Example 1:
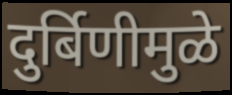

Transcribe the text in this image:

दुर्बिणीमुळे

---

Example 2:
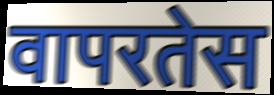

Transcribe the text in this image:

वापरतेस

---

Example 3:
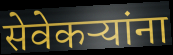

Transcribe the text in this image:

सेवेकऱ्यांना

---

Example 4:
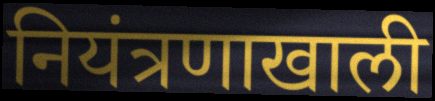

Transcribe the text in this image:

नियंत्रणाखाली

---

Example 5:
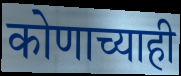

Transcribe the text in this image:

कोणाच्याही